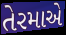
તેરમાએ